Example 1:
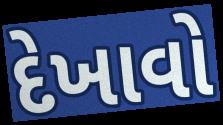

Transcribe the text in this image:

દેખાવો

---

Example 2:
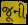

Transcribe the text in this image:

જૂની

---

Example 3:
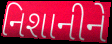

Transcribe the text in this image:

નિશાનીને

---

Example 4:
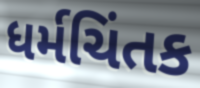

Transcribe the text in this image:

ધર્મચિંતક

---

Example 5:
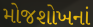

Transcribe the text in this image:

મોજશોખનાં